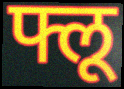
फ्लू